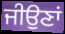
ਜੀਉਣਾਂ